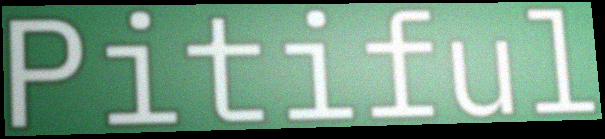
Pitiful